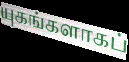
யுகங்களாகப்